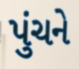
પુંચને